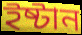
ইষ্টান